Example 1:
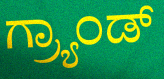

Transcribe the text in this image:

ಗ್ರ್ಯಾಂಡ್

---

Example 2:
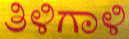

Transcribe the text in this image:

ತಿಳಿಗಾಳಿ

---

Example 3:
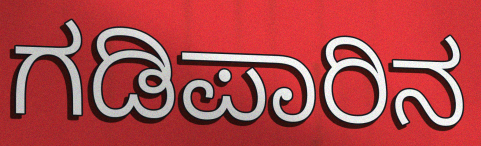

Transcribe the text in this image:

ಗಡಿಪಾರಿನ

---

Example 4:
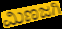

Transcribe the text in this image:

ಮಿಣಜಗಿ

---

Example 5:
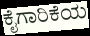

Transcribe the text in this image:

ಕೈಗಾರಿಕೆಯ